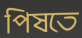
পিষতে